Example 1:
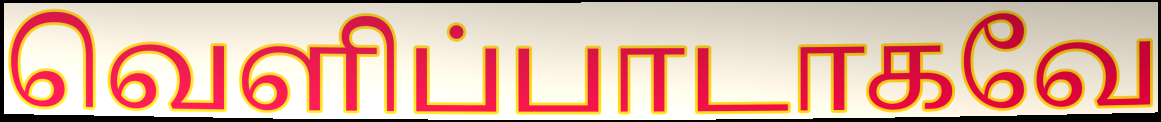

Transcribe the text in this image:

வெளிப்பாடாகவே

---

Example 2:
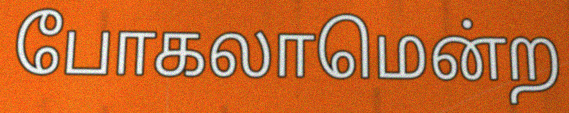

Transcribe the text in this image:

போகலாமென்ற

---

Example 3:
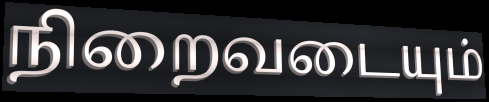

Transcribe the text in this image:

நிறைவடையும்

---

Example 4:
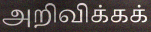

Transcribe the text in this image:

அறிவிக்கக்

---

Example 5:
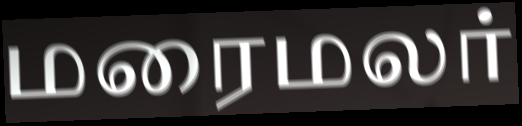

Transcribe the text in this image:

மரைமலர்